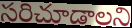
సరిచూడాలని